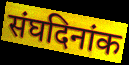
संघदिनांक